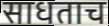
साधताच